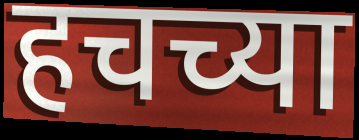
हचच्या